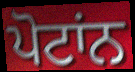
ਪੋਟਾਂਨ